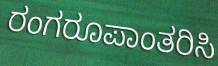
ರಂಗರೂಪಾಂತರಿಸಿ